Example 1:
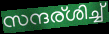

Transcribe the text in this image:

സന്ദര്ശിച്ച്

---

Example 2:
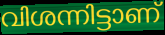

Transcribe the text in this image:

വിശന്നിട്ടാണ്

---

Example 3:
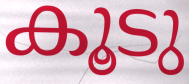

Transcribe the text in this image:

കൂടു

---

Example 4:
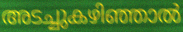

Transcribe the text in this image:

അടച്ചുകഴിഞ്ഞാൽ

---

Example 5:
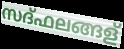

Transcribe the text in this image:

സദ്ഫലങ്ങള്